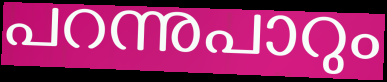
പറന്നുപാറും